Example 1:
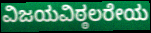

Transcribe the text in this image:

ವಿಜಯವಿಠ್ಠಲರೇಯ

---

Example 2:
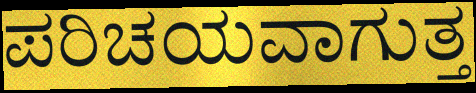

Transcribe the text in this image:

ಪರಿಚಯವಾಗುತ್ತ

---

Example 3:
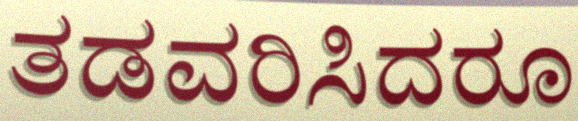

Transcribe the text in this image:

ತಡವರಿಸಿದರೂ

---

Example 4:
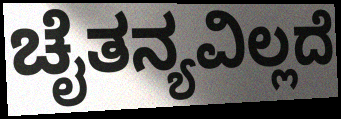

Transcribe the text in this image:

ಚೈತನ್ಯವಿಲ್ಲದೆ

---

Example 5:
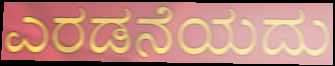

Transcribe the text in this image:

ಎರಡನೆಯದು